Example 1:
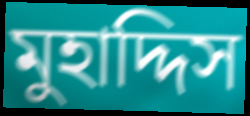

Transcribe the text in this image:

মুহাদ্দিস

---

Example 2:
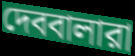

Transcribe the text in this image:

দেববালারা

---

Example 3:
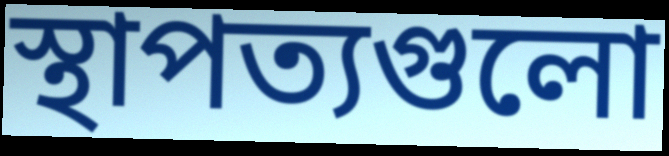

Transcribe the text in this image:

স্থাপত্যগুলো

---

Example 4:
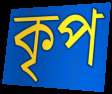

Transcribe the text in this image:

কৃপ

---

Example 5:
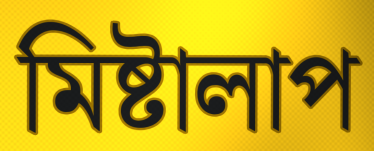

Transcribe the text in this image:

মিষ্টালাপ